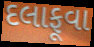
દલાફૂવા